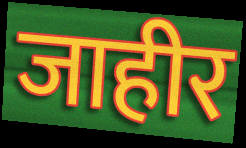
जाहीर